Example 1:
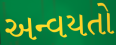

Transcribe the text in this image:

અન્વયતો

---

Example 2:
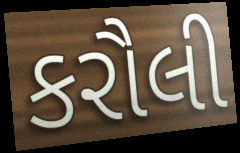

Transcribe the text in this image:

કરૌલી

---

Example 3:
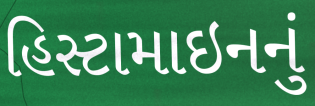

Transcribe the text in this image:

હિસ્ટામાઇનનું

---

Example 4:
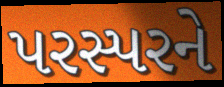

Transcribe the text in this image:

પરસ્પરને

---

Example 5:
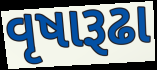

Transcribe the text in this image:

વૃષારૂઢા